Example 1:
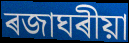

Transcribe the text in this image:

ৰজাঘৰীয়া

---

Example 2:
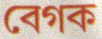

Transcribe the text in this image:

বেগক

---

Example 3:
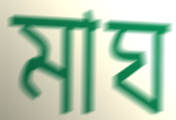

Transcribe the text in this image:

মাঘ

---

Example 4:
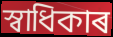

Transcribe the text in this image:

স্বাধিকাৰ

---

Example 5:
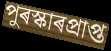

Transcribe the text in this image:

পুৰস্কাৰপ্ৰাপ্ত